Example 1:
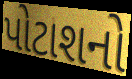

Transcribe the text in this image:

પોટાશનો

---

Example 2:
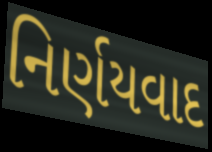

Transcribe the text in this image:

નિર્ણયવાદ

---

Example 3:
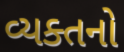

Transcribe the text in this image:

વ્યક્તનો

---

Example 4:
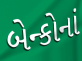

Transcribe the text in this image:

બેન્કોનાં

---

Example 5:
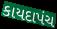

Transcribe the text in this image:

કાયદાપંચ